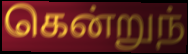
கென்றுந்